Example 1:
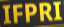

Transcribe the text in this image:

IFPRI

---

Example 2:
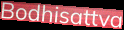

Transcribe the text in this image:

Bodhisattva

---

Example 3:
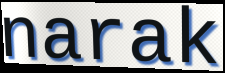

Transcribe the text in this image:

narak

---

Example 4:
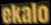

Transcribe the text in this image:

ekalo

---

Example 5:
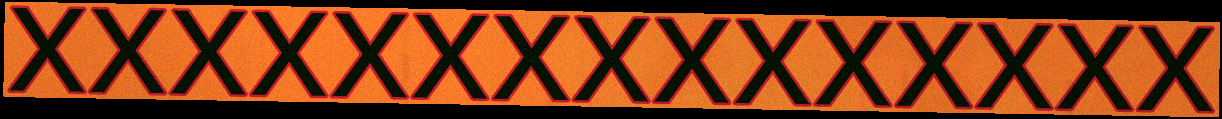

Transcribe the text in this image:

xxxxxxxxxxxxxxx